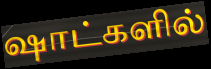
ஷாட்களில்